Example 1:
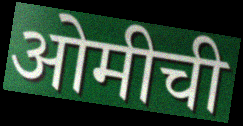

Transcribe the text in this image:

ओमीची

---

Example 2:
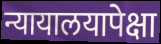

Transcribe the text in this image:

न्यायालयापेक्षा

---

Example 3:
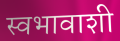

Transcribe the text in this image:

स्वभावाशी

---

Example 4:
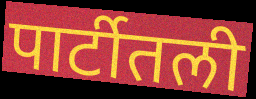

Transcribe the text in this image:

पार्टीतली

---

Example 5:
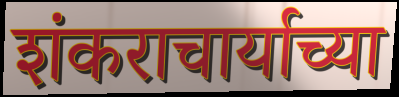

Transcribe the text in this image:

शंकराचार्याच्या